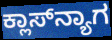
ಕ್ಲಾಸ್‌ನ್ಯಾಗ